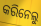
କରିନେଲୁ